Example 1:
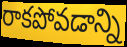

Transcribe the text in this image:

రాకపోవడాన్ని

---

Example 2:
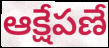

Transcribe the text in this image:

ఆక్షేపణే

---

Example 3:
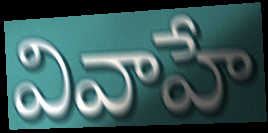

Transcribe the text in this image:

వివాహే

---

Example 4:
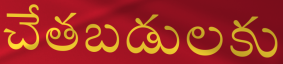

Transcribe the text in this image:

చేతబడులకు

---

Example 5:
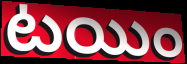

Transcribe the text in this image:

టయిం